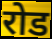
रोड